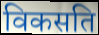
विकसति